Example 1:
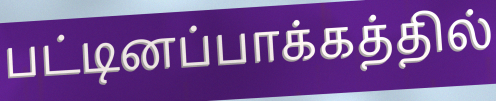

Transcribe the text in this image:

பட்டினப்பாக்கத்தில்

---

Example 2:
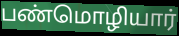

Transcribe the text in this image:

பண்மொழியார்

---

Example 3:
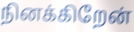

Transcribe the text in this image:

நினக்கிறேன்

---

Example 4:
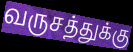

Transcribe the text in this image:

வருசத்துக்கு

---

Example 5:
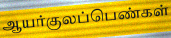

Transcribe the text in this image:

ஆயர்குலப்பெண்கள்